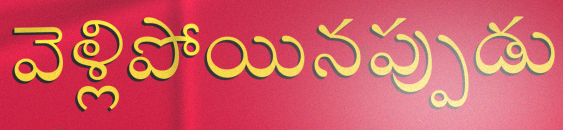
వెళ్లిపోయినప్పుడు